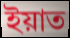
ইয়াত